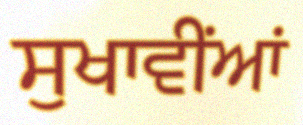
ਸੁਖਾਵੀਂਆਂ